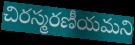
చిరస్మరణీయమని